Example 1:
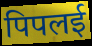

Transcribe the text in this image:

पिपलई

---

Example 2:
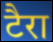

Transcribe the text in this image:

टैरा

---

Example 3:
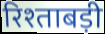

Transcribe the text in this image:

रिश्ताबड़ी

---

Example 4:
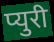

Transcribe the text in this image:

प्युरी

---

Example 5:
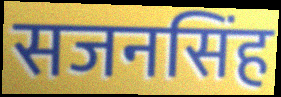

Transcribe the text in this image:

सजनसिंह